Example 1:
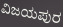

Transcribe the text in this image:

ವಿಜಯಪುರ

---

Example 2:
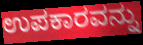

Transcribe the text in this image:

ಉಪಕಾರವನ್ನು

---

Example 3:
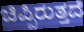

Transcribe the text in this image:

ಚಿಪ್ಪಿರುತ್ತದೆ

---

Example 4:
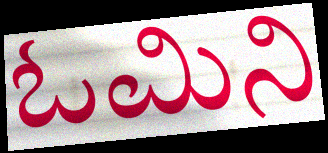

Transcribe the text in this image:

ಓಮಿನಿ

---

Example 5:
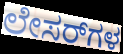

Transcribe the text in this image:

ಲೇಸರ್‌ಗಳ